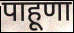
पाहूणा